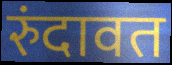
रुंदावत